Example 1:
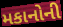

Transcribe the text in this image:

મકાનોની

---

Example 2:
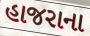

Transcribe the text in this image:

હાજરાના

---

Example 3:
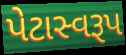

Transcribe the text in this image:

પેટાસ્વરૂપ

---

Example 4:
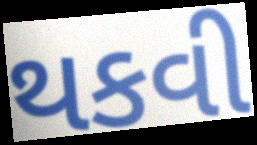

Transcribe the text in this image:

થકવી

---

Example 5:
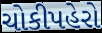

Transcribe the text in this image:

ચોકીપહેરો